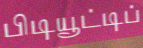
பிடியூட்டிப்